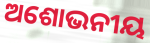
ଅଶୋଭନୀୟ